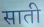
साती